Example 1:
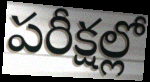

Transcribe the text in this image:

పరీక్షల్లో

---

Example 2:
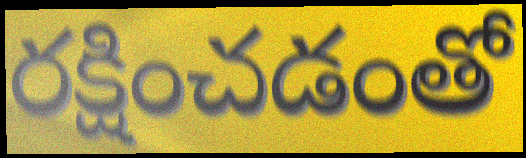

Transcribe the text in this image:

రక్షించడంతో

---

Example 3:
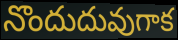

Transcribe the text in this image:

నొందుదువుగాక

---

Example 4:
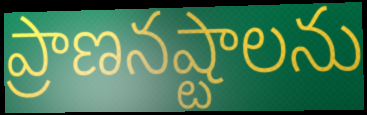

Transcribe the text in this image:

ప్రాణనష్టాలను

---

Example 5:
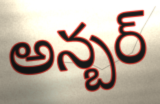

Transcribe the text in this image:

అన్బర్